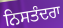
ਨਿਸਤੰਦਰਾ